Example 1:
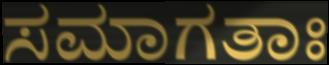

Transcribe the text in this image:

ಸಮಾಗತಾಃ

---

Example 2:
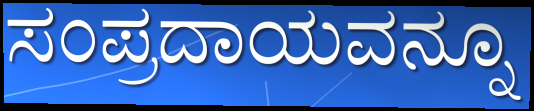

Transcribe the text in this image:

ಸಂಪ್ರದಾಯವನ್ನೂ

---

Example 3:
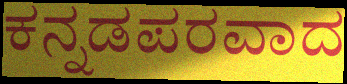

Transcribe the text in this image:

ಕನ್ನಡಪರವಾದ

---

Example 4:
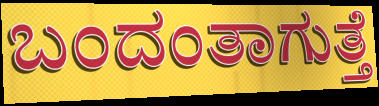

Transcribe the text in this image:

ಬಂದಂತಾಗುತ್ತೆ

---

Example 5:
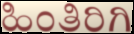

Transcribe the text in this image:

ಹಿಂತಿರಿಗಿ